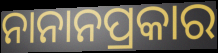
ନାନାନପ୍ରକାର